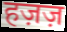
हज़ज़